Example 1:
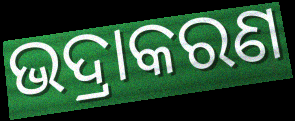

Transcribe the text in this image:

ଭଦ୍ରାକରଣ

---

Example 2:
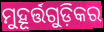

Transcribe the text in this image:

ମୁହୂର୍ତ୍ତଗୁଡ଼ିକର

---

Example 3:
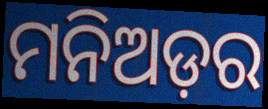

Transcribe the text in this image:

ମନିଅଡ଼ର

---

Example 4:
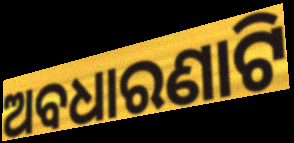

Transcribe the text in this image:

ଅବଧାରଣାଟି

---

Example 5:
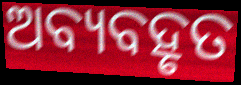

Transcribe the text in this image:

ଅବ୍ୟବହୃତ